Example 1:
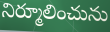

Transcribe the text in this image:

నిర్మూలించును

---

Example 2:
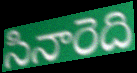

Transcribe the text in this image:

సినారెది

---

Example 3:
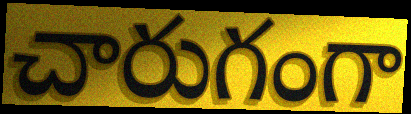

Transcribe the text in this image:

చారుగంగా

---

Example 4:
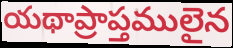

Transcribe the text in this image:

యథాప్రాప్తములైన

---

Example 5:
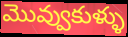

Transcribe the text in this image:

మొవ్వుకుళ్ళు